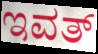
ಇವತ್